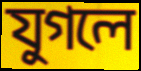
যুগলে